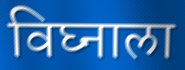
विघ्नाला